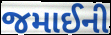
જમાઈની